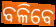
ବଳିବେ